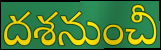
దశనుంచీ